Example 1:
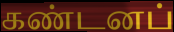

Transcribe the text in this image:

கண்டனப்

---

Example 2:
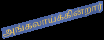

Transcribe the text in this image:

அங்கலாய்க்கின்றார்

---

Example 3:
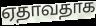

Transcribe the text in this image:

ஏதாவதாக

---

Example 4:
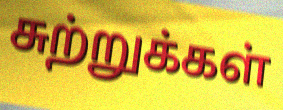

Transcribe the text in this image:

சுற்றுக்கள்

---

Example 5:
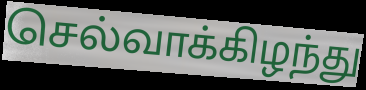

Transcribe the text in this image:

செல்வாக்கிழந்து